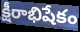
క్షీరాభిషేకం